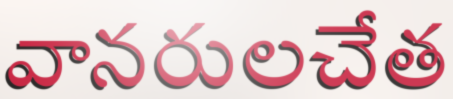
వానరులచేత